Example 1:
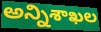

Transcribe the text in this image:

అన్నిశాఖల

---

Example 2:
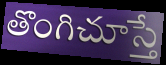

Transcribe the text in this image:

తొంగిచూస్తే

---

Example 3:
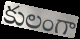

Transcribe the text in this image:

కులంగా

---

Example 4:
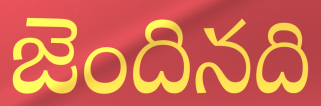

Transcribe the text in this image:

జెందినది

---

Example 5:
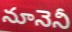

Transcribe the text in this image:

నూనెనీ